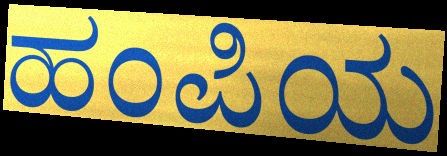
ಹಂಪಿಯ